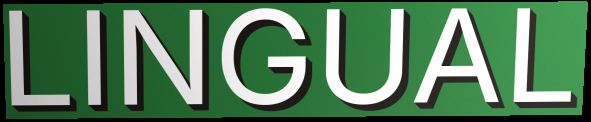
LINGUAL